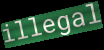
illegal